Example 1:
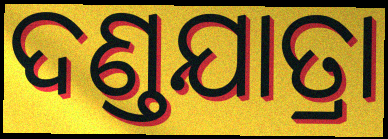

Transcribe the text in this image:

ଦଣ୍ଡଯାତ୍ରା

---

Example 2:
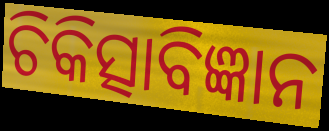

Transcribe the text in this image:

ଚିକିତ୍ସାବିଜ୍ଞାନ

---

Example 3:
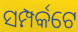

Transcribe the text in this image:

ସମ୍ପର୍କଟେ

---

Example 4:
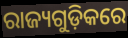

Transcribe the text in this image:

ରାଜ୍ୟଗୁଡ଼ିକରେ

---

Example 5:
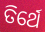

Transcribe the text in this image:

ତିର୍ଥେ